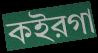
কইরগা